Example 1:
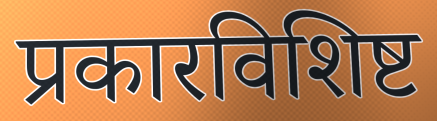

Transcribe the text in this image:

प्रकारविशिष्ट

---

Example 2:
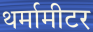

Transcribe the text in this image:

थर्मामीटर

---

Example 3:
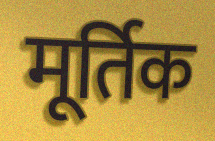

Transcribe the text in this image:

मूर्तिक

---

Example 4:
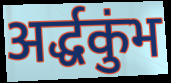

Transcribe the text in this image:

अर्द्धकुंभ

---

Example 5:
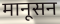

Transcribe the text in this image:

मानूसन